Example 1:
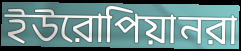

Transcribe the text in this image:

ইউরোপিয়ানরা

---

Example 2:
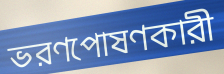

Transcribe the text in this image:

ভরণপোষণকারী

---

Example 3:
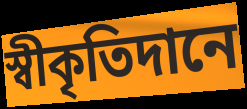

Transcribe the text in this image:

স্বীকৃতিদানে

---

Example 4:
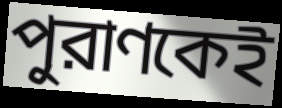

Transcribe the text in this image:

পুরাণকেই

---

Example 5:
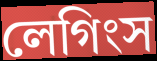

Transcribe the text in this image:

লেগিংস